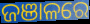
ଜଞାଳରେ